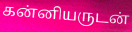
கன்னியருடன்